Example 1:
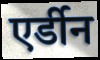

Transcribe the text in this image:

एर्डीन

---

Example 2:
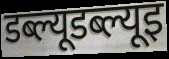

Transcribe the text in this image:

डब्ल्यूडब्ल्यूइ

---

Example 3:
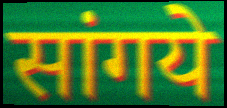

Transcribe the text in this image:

सांगये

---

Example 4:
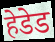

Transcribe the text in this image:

हेडेड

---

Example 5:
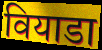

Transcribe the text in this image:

वियाडा